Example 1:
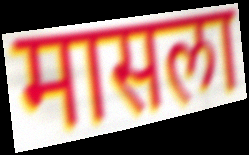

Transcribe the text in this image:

मासला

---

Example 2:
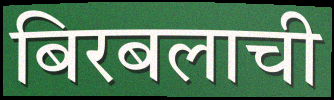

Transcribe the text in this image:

बिरबलाची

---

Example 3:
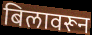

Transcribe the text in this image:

बिलावरून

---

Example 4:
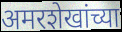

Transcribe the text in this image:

अमरशेखांच्या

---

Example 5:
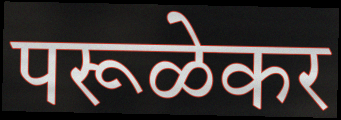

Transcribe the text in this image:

परूळेकर